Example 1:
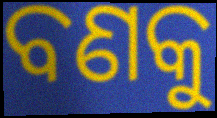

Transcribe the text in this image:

ବଣକୁ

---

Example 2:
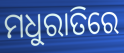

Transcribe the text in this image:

ମଧୁରାତିରେ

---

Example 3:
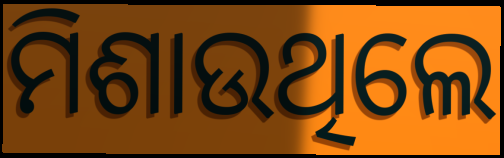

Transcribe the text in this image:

ମିଶାଉଥିଲେ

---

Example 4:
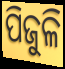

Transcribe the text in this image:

ପିଜୁଳି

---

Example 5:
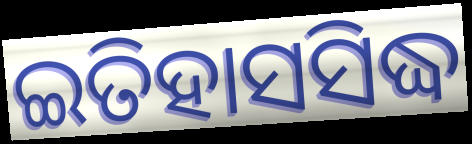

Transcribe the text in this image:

ଇତିହାସସିଦ୍ଧ